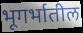
भूगर्भातील